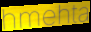
hmehta